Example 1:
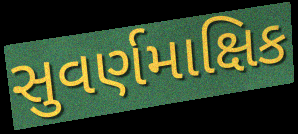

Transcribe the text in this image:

સુવર્ણમાક્ષિક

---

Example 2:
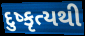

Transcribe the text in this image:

દુષ્કૃત્યથી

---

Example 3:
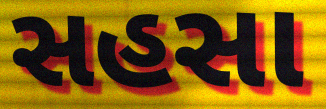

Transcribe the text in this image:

સહસા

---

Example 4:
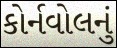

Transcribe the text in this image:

કોર્નવોલનું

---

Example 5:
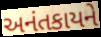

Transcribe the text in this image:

અનંતકાયને